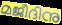
മജീദിനു